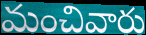
మంచివారు